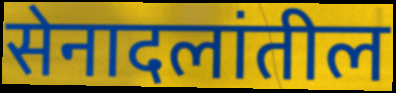
सेनादलांतील